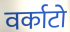
वर्काटो